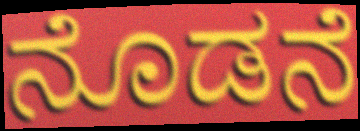
ನೊಡನೆ